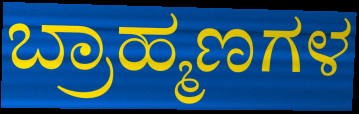
ಬ್ರಾಹ್ಮಣಗಳ